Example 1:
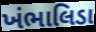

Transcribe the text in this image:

ખંભાલિડા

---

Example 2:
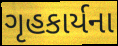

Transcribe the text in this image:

ગૃહકાર્યના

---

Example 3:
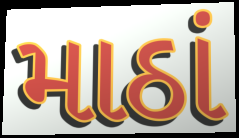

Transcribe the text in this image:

માઠાં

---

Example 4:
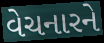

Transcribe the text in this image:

વેચનારને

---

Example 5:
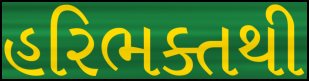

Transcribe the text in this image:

હરિભક્તથી